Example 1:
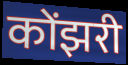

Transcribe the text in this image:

कोंझरी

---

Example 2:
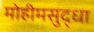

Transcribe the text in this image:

मोहीमसुद्धा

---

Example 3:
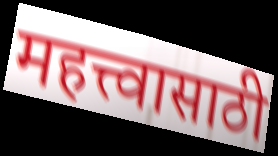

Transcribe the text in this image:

महत्त्वासाठी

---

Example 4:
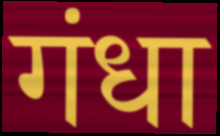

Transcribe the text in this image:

गंधा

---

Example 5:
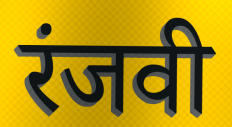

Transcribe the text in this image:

रंजवी